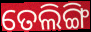
ତେଲିଙ୍ଗି